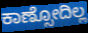
ಕಾಣ್ಸೋದಿಲ್ಲ